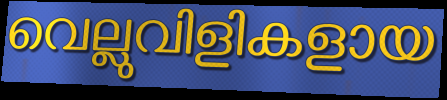
വെല്ലുവിളികളായ